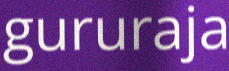
gururaja